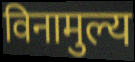
विनामुल्य